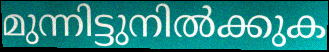
മുന്നിട്ടുനിൽക്കുക